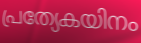
പ്രത്യേകയിനം